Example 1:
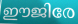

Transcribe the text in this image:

ഈജിരേ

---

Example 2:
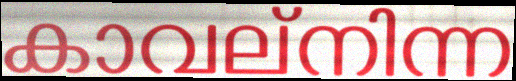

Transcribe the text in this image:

കാവല്നിന്ന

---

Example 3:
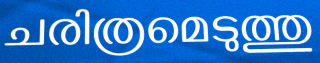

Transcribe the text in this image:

ചരിത്രമെടുത്തു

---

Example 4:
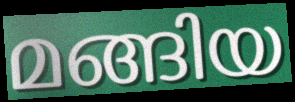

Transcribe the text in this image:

മങ്ങിയ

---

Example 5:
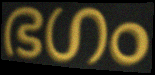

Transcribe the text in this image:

ഭഗം